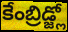
కేంబ్రిడ్జ్లో